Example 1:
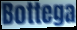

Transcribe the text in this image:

Bottega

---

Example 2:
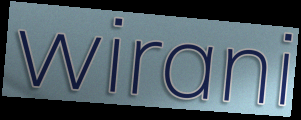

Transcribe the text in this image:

wirani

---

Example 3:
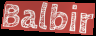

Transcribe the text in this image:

Balbir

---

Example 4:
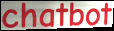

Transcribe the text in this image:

chatbot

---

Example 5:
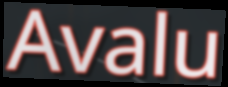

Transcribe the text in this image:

Avalu